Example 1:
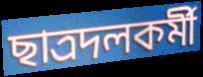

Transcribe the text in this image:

ছাত্রদলকর্মী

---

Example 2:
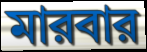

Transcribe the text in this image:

মারবার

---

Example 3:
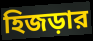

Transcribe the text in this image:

হিজড়ার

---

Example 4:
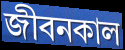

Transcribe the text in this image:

জীবনকাল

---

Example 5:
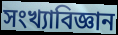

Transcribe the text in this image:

সংখ্যাবিজ্ঞান